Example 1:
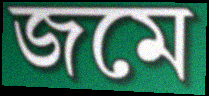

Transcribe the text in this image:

জমে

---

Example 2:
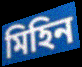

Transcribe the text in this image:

মিহিন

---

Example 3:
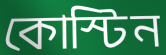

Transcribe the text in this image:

কোস্টিন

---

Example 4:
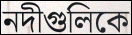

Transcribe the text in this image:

নদীগুলিকে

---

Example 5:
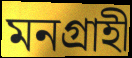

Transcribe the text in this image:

মনগ্রাহী